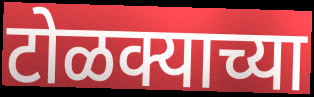
टोळक्याच्या